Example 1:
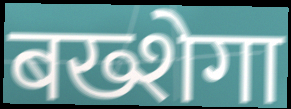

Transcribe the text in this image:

बख्शेगा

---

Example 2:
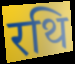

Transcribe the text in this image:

रथि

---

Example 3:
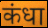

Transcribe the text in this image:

कंधा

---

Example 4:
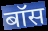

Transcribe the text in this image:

बॉस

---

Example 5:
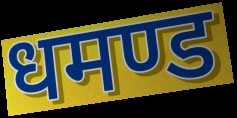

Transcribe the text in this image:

धमण्ड